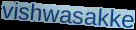
vishwasakke